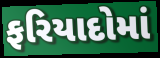
ફરિયાદોમાં